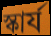
স্কার্য